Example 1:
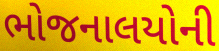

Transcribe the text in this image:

ભોજનાલયોની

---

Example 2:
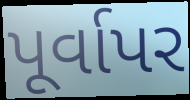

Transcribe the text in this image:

પૂર્વાપર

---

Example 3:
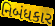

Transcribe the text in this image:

નિબંધકાર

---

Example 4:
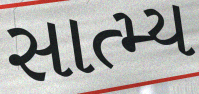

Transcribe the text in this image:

સાત્મ્ય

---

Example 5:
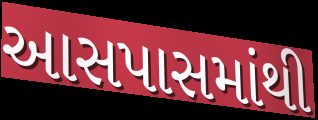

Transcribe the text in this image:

આસપાસમાંથી